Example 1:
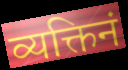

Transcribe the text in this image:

व्यक्तिनं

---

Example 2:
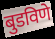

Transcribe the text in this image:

बुडविणे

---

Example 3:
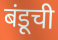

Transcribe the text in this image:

बंडूची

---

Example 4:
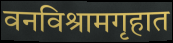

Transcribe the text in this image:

वनविश्रामगृहात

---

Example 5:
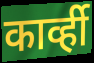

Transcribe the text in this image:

कार्व्ही